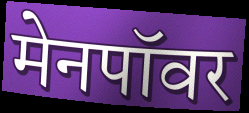
मेनपॉवर